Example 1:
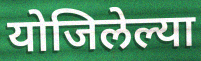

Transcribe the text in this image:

योजिलेल्या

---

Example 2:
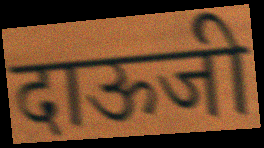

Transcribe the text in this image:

दाऊजी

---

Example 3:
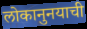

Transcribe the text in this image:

लोकानुनयाची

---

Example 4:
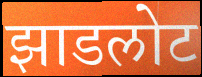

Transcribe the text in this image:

झाडलोट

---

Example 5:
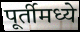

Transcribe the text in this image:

पूर्तीमध्ये